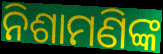
ନିଶାମଣିଙ୍କ